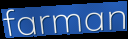
farman